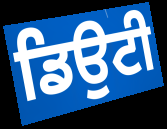
ਡਿਉਟੀ